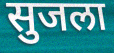
सुजला